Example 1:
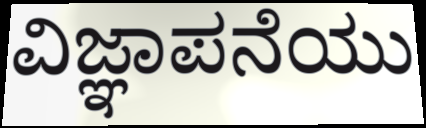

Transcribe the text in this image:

ವಿಜ್ಞಾಪನೆಯು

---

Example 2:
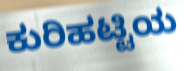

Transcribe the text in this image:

ಕುರಿಹಟ್ಟಿಯ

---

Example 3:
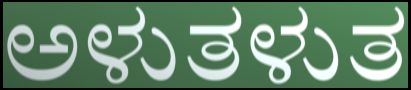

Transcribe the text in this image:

ಅಳುತಳುತ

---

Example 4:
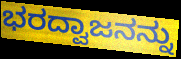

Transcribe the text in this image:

ಭರದ್ವಾಜನನ್ನು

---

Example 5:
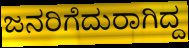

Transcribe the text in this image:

ಜನರಿಗೆದುರಾಗಿದ್ದ